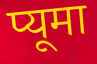
प्यूमा